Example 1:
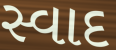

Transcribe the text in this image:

સ્વાદ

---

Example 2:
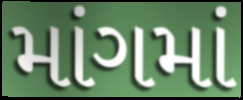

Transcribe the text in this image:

માંગમાં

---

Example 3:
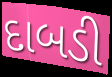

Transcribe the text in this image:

દાબડી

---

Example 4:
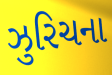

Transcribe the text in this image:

ઝુરિચના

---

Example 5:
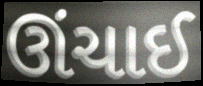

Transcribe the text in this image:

ઊંચાઈ